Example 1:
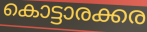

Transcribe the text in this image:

കൊട്ടാരക്കര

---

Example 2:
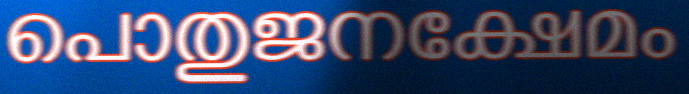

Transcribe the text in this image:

പൊതുജനക്ഷേമം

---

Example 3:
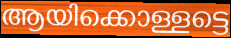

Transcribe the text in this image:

ആയിക്കൊള്ളട്ടെ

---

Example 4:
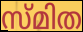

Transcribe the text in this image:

സ്മിത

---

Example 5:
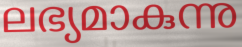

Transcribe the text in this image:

ലഭ്യമാകുന്നു